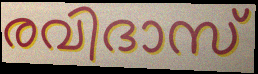
രവിദാസ്